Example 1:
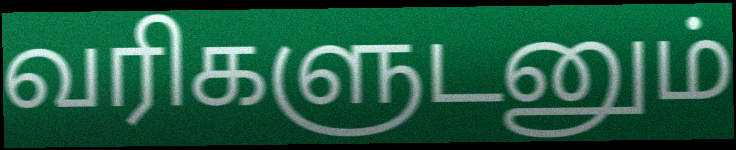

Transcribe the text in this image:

வரிகளுடனும்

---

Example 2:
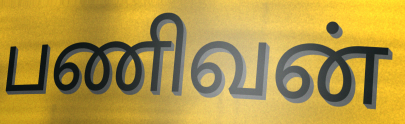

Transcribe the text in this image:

பணிவன்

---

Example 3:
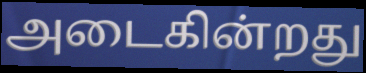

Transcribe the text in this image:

அடைகின்றது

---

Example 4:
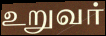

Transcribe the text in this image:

உறுவர்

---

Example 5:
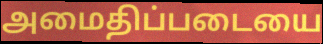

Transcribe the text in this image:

அமைதிப்படையை